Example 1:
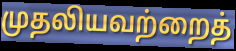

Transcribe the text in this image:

முதலியவற்றைத்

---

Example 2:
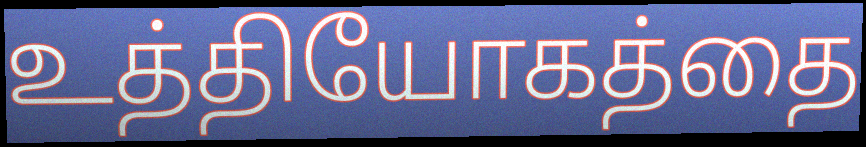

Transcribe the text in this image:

உத்தியோகத்தை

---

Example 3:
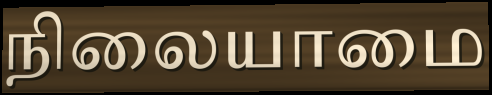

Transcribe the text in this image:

நிலையாமை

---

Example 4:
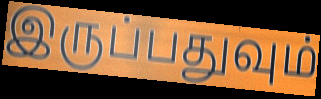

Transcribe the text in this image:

இருப்பதுவும்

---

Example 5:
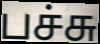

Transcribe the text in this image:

பச்சு